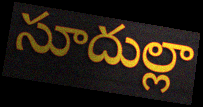
సూదుల్లా